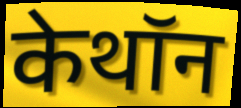
केथॉन